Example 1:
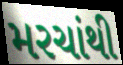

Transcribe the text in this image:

મરચાંથી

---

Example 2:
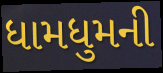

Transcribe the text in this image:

ધામધુમની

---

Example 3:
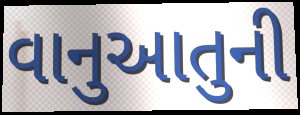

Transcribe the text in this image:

વાનુઆતુની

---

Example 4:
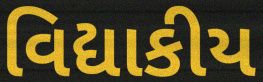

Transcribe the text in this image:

વિદ્યાકીય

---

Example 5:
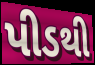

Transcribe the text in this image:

પીડથી